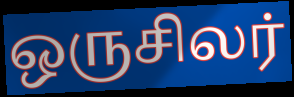
ஒருசிலர்